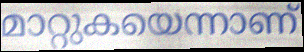
മാറ്റുകയെന്നാണ്